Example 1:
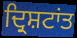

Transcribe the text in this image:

ਦ੍ਰਿਸ਼ਟਾਂਤ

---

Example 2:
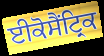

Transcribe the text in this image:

ਈਕੋਸੈਂਟ੍ਰਿਕ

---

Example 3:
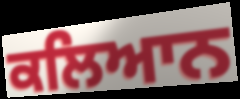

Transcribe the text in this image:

ਕਲਿਆਨ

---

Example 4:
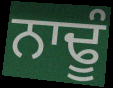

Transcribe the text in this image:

ਨਾਢੂੰ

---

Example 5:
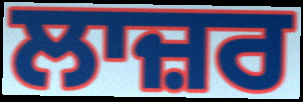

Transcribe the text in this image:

ਲਾਜ਼ਰ